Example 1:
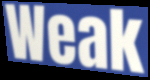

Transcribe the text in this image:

Weak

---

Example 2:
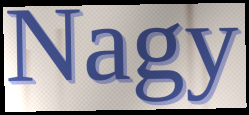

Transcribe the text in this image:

Nagy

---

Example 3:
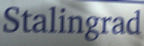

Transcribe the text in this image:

Stalingrad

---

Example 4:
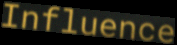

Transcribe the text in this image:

Influence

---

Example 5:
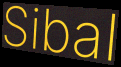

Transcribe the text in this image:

Sibal